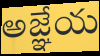
అజ్ఞేయ